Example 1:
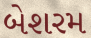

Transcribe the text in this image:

બેશરમ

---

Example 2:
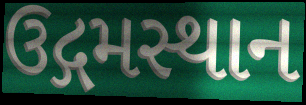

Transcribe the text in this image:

ઉદ્ગમસ્થાન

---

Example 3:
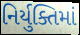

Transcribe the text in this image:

નિર્યુક્તિમાં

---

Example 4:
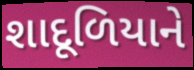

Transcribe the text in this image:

શાદૂળિયાને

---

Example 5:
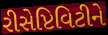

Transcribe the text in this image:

રીસેપ્ટિવિટીને